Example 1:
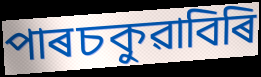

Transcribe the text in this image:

পাৰচকুৱাবিৰি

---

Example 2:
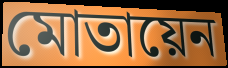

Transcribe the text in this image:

মোতায়েন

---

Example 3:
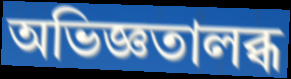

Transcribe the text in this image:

অভিজ্ঞতালব্ধ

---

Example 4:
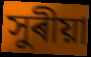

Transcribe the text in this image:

সুৰীয়া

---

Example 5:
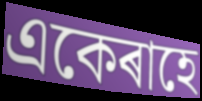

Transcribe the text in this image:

একেৰাহে